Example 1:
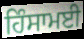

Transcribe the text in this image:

ਹਿੰਸਾਮਈ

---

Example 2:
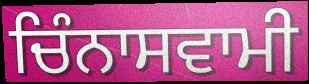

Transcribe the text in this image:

ਚਿੰਨਾਸਵਾਮੀ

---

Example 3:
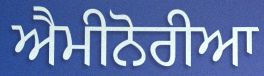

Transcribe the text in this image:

ਐਮੀਨੋਰੀਆ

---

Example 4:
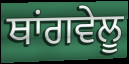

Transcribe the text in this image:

ਥਾਂਗਵੇਲੂ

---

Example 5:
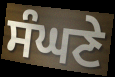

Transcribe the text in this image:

ਸੰਘਣੇ